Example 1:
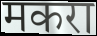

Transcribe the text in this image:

मकरा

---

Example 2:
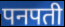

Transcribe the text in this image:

पनपती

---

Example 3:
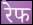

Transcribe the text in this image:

रेफ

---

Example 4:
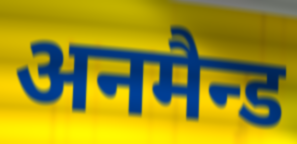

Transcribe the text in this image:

अनमैन्ड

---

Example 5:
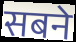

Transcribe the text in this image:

सबने